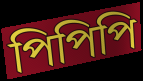
পিপিপি